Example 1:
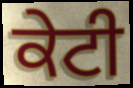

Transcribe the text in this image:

ਕੇਟੀ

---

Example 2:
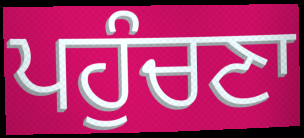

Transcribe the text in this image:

ਪਹੁੰਚਣਾ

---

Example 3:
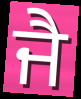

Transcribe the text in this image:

ਜੈ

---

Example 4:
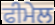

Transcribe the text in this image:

ਫੀਮੇਲ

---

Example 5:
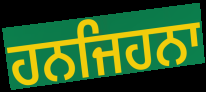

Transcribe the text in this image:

ਹਨਜਿਹਨਾ